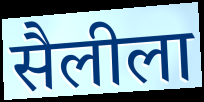
सैलीला